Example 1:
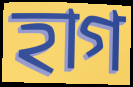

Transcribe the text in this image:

হাগ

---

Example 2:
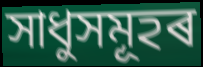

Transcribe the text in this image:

সাধুসমূহৰ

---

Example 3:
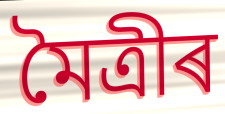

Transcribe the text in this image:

মৈত্ৰীৰ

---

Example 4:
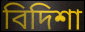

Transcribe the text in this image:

বিদিশা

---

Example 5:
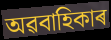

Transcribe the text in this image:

অৱবাহিকাৰ